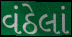
વંઠેલાં